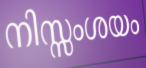
നിസ്സംശയം